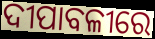
ଦୀପାବଳୀରେ